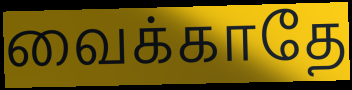
வைக்காதே